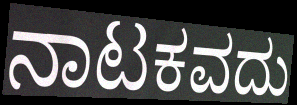
ನಾಟಕವದು